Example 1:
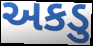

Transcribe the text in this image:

અકડુ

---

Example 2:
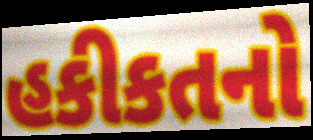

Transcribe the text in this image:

હકીકતનો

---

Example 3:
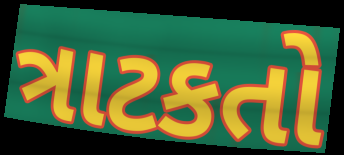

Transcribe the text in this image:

ત્રાટકતો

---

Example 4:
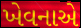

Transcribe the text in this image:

ખેવનાએ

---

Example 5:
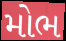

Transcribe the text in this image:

મોભ